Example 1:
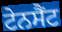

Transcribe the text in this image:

ਟੇਨਸੈਂਟ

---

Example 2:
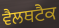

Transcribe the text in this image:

ਵੈਲਥਟੈਕ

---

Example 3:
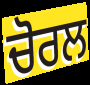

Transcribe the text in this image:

ਚੋਰਲ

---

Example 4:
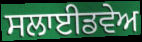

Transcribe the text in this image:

ਸਲਾਈਡਵੇਅ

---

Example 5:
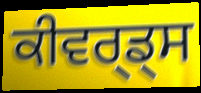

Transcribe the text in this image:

ਕੀਵਰ੍ਡ੍ਸ